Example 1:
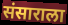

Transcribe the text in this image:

संसाराला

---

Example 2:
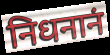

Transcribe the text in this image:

निधनानं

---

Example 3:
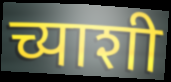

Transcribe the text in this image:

च्याशी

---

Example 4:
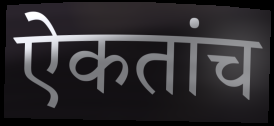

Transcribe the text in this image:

ऐकतांच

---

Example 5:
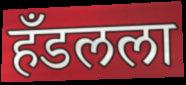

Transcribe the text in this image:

हँडलला